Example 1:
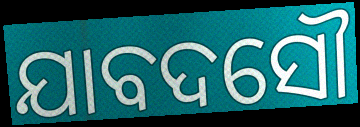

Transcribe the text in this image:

ଯାବଦସୌ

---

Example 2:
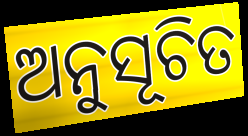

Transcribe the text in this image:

ଅନୁସୂଚିତ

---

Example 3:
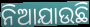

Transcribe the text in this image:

ନିଆଯାଉଛି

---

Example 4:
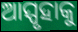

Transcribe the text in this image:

ଆସ୍ପୃହାକୁ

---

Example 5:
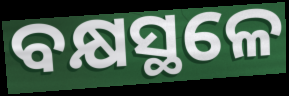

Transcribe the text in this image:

ବକ୍ଷସ୍ଥଳେ